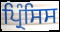
ਪ੍ਰਿੰਸਿਸ